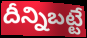
దీన్నిబట్టే